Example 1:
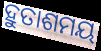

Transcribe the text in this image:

ହୁତାଶମୟ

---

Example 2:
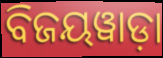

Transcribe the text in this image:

ବିଜୟୱାଡ଼ା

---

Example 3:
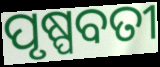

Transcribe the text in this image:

ପୃଷ୍ପବତୀ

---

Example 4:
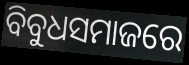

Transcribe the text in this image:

ବିବୁଧସମାଜରେ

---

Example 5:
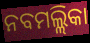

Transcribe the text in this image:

ନବମଲ୍ଲିକା